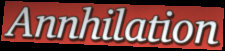
Annhilation